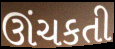
ઊંચકતી